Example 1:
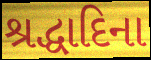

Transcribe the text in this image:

શ્રદ્ધાદિના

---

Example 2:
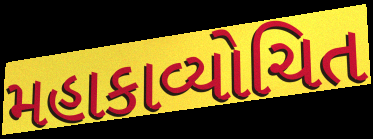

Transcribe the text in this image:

મહાકાવ્યોચિત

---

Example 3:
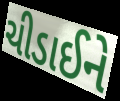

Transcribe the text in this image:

ચીડાઈને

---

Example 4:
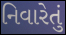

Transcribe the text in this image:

નિવારેતું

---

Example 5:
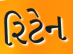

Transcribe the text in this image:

રિટેન